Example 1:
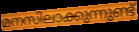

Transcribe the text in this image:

മനസിലാക്കുന്നുണ്ട്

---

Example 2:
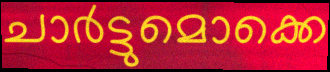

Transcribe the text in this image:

ചാർട്ടുമൊക്കെ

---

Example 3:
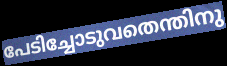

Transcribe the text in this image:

പേടിച്ചോടുവതെന്തിനു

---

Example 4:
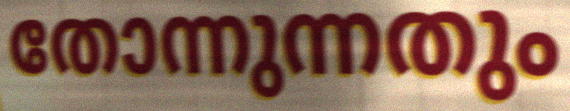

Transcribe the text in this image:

തോന്നുന്നതും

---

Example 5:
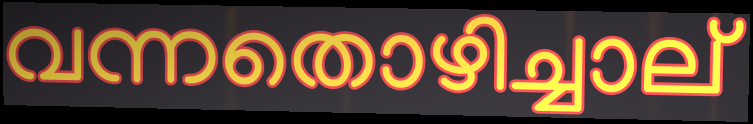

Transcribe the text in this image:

വന്നതൊഴിച്ചാല്